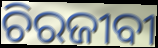
ଚିରଜୀବୀ